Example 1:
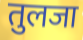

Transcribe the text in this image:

तुलजा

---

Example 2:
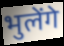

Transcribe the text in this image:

भुलेंगे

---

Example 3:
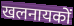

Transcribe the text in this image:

खलनायकों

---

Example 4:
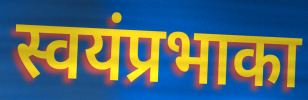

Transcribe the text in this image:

स्वयंप्रभाका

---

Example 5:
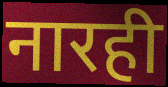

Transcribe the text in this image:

नारही